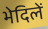
भेदिलें